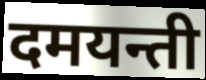
दमयन्ती